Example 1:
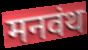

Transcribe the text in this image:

मनवंथ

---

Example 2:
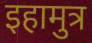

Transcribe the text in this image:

इहामुत्र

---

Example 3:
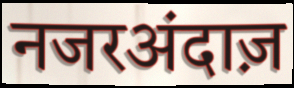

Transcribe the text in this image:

नजरअंदाज़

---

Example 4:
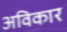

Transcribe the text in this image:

अविकार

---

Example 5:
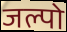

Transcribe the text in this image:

जल्पो